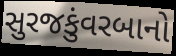
સુરજકુંવરબાનો